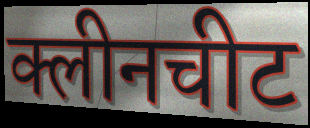
क्लीनचीट